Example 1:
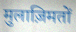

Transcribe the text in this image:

मुलाज़िमतों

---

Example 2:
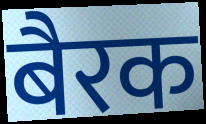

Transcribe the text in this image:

बैरक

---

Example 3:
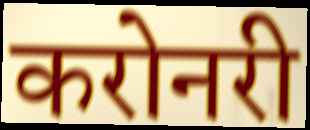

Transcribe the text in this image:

करोनरी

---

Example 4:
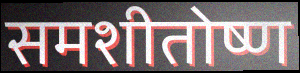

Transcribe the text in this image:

समशीतोष्ण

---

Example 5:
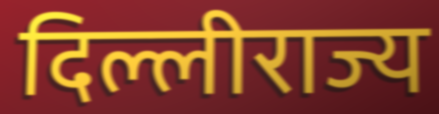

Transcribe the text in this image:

दिल्लीराज्य